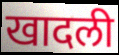
खादली